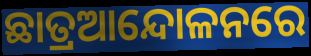
ଛାତ୍ରଆନ୍ଦୋଳନରେ